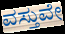
ವಸ್ತುವೇ